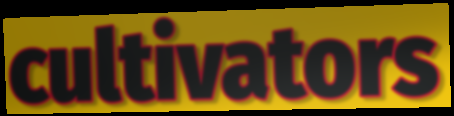
cultivators